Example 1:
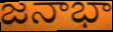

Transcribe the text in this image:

జనాభా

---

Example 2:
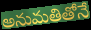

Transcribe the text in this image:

అనుమతితోనే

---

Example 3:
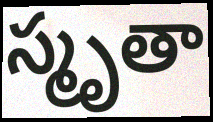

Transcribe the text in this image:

స్మృతా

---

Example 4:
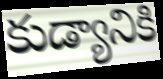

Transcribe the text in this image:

కుడ్యానికి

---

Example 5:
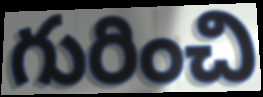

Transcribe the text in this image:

గురించి